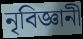
নৃবিজ্ঞানী